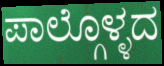
ಪಾಲ್ಗೊಳ್ಳದ